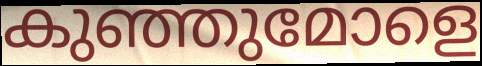
കുഞ്ഞുമോളെ